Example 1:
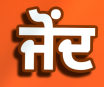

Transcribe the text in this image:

ਜੋਂਦ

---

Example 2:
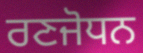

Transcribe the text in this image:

ਰਣਜੋਧਨ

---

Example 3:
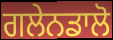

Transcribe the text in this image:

ਗਲੇਨਡਾਲੋ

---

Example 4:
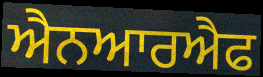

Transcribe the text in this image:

ਐਨਆਰਐਫ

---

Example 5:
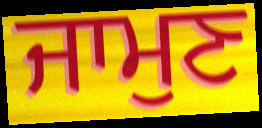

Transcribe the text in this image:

ਜਾਮੁਣ